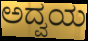
ಅದ್ವಯ